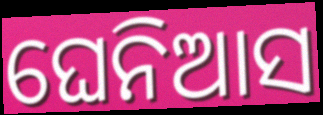
ଘେନିଆସ